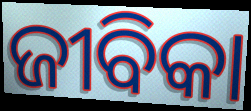
ଜୀବିକା